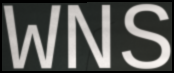
WNS